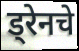
ड्रेनचे